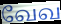
வேவ